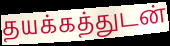
தயக்கத்துடன்